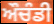
ਔਚੰਡੀ